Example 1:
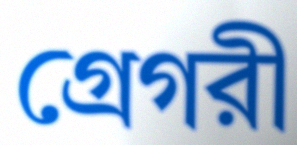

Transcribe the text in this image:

গ্রেগরী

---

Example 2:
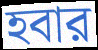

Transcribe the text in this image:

হবার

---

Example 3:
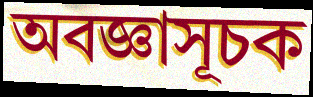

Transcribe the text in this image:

অবজ্ঞাসূচক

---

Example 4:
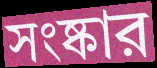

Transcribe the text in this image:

সংষ্কার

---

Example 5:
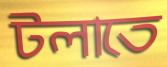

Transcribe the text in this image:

টলাতে